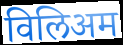
विलिअम